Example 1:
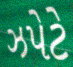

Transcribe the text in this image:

ઝપેટે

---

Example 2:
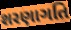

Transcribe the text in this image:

શરણાગતિ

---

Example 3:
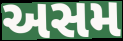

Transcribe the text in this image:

અસમ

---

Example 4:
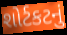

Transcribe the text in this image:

શોર્ટકટનું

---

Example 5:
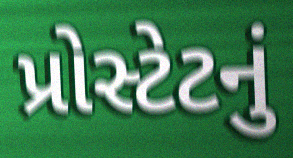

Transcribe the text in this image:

પ્રોસ્ટેટનું